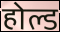
होल्ड